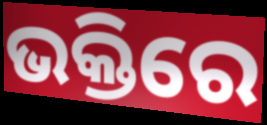
ଭକ୍ତିରେ